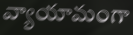
వ్యాయామంగా